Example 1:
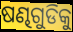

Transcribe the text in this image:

ଷଣ୍ଢଗୁଡିକୁ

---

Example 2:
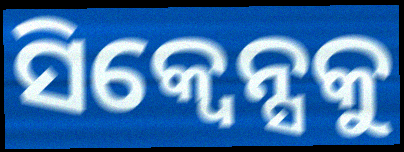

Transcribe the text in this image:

ସିକ୍ୱେନ୍ସକୁ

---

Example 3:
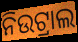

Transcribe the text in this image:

ନିଉଟ୍ରାଲ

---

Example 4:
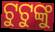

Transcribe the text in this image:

ଟୁଟୁଙ୍କୁ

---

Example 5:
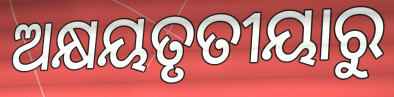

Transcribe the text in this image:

ଅକ୍ଷୟତୃତୀୟାରୁ